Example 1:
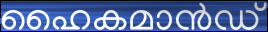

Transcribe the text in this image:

ഹൈകമാൻഡ്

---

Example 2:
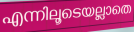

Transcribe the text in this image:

എന്നിലൂടെയല്ലാതെ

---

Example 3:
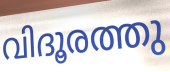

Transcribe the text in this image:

വിദൂരത്തു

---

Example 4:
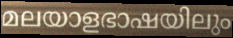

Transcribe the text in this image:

മലയാളഭാഷയിലും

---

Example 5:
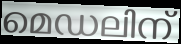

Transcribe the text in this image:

മെഡലിന്